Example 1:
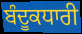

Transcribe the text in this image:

ਬੰਦੂਕਧਾਰੀ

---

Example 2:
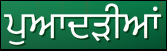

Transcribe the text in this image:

ਪੁਆਦੜੀਆਂ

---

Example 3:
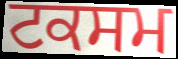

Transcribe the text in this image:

ਟਕਸਮ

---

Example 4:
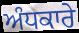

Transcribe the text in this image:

ਅੰਧਕਾਰੇ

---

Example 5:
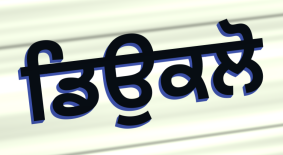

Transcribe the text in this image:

ਡਿਉਕਲੋ